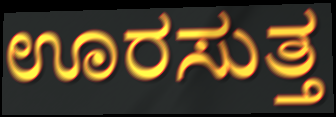
ಊರಸುತ್ತ